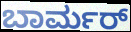
ಬಾರ್ಮರ್